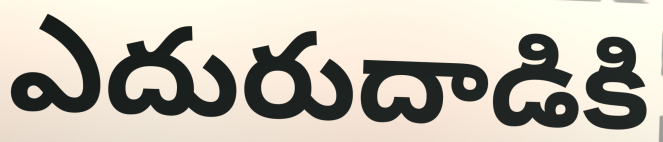
ఎదురుదాడికి